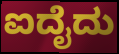
ಐದೈದು